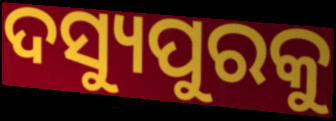
ଦସ୍ୟୁପୁରକୁ